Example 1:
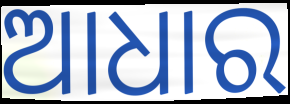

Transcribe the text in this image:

ଆଧାର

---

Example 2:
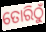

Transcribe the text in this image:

ତୋରିଠୁଁ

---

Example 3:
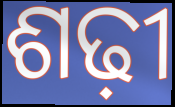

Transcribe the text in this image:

ଶଢ଼ୀ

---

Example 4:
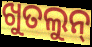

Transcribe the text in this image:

ଖୁତଲୁନ୍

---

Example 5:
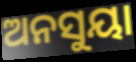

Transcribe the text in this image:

ଅନସୁୟା